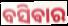
ବସିଵାର